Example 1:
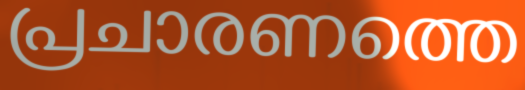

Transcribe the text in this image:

പ്രചാരണത്തെ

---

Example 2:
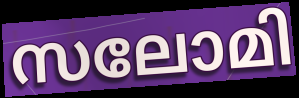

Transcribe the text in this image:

സലോമി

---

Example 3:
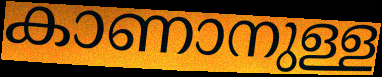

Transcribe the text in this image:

കാണാനുള്ള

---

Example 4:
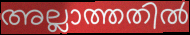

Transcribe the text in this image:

അല്ലാത്തതിൽ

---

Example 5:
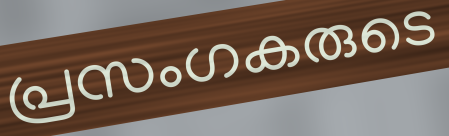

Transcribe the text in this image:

പ്രസംഗകരുടെ